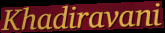
Khadiravani